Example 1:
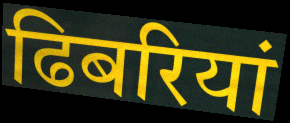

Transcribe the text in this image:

ढिबरियां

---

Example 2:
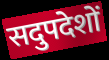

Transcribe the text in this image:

सदुपदेशों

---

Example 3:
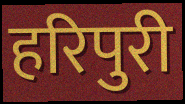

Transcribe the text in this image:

हरिपुरी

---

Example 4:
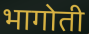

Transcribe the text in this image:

भागोती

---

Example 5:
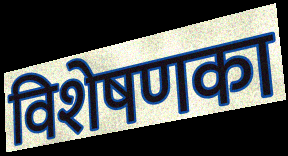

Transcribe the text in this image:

विशेषणका